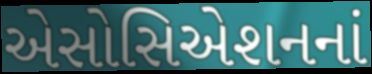
એસોસિએશનનાં